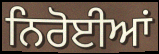
ਨਿਰੋਈਆਂ